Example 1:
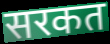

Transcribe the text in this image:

सरकत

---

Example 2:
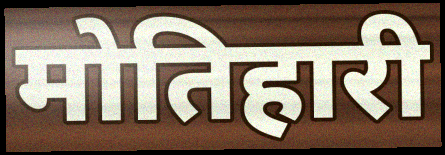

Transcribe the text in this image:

मोतिहारी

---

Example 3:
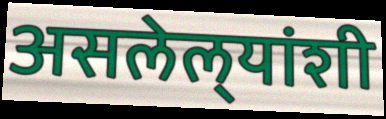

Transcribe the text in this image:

असलेल्यांशी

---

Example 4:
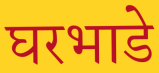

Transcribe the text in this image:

घरभाडे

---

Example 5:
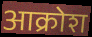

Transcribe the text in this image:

आक्रोश